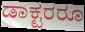
ಡಾಕ್ಟರರೂ